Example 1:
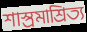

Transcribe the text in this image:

শাস্ত্রমাশ্রিত্য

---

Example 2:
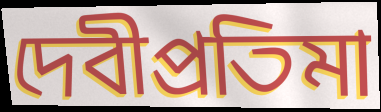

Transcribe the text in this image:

দেবীপ্রতিমা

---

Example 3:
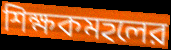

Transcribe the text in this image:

শিক্ষকমহলের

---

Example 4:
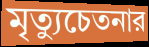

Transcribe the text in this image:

মৃত্যুচেতনার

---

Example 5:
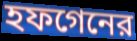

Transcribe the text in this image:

হফগেনের